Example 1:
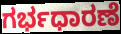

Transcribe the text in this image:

ಗರ್ಭಧಾರಣೆ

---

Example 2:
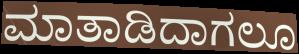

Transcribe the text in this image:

ಮಾತಾಡಿದಾಗಲೂ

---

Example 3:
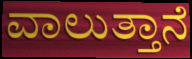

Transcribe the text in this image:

ವಾಲುತ್ತಾನೆ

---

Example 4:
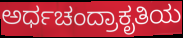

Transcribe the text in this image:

ಅರ್ಧಚಂದ್ರಾಕೃತಿಯ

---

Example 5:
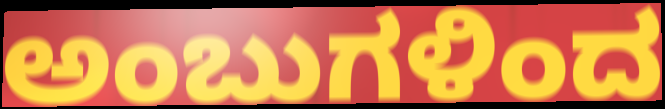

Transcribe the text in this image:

ಅಂಬುಗಳಿಂದ